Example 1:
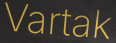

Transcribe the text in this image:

Vartak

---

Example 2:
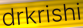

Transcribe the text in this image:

drkrishi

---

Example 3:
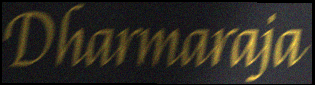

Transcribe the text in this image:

Dharmaraja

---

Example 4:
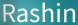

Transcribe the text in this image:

Rashin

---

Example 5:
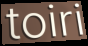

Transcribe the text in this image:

toiri